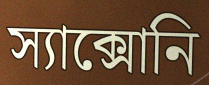
স্যাক্সোনি